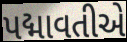
પદ્માવતીએ